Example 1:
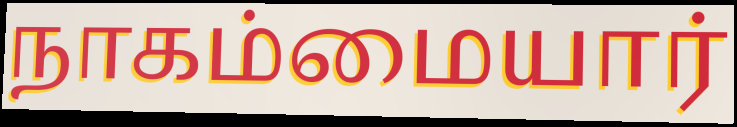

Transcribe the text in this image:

நாகம்மையார்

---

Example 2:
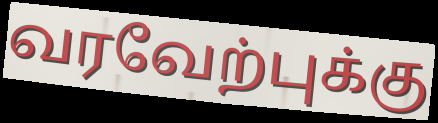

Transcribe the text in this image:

வரவேற்புக்கு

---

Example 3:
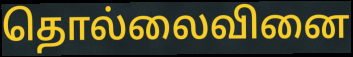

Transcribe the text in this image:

தொல்லைவினை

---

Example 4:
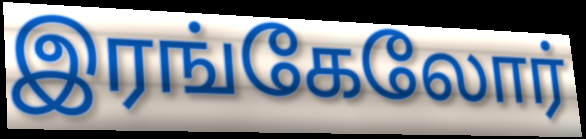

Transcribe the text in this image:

இரங்கேலோர்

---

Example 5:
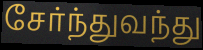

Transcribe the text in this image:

சேர்ந்துவந்து